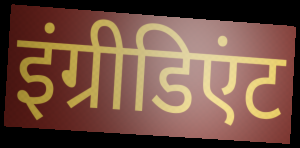
इंग्रीडिएंट